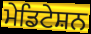
ਮੇਡਿਟੇਸ਼ਨ